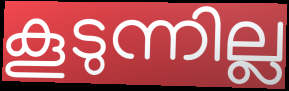
കൂടുന്നില്ല